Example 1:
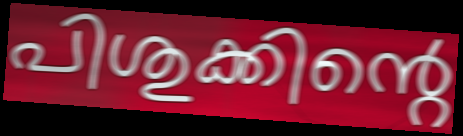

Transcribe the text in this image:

പിശുക്കിന്റെ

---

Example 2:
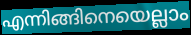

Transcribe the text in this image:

എന്നിങ്ങിനെയെല്ലാം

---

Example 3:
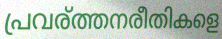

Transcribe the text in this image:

പ്രവര്ത്തനരീതികളെ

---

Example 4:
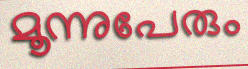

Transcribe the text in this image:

മൂന്നുപേരും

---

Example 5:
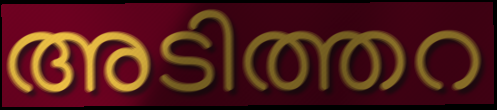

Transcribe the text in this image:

അടിത്തറ